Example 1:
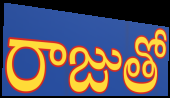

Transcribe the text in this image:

రాజుతో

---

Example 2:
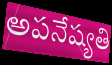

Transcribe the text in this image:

అపనేష్యతి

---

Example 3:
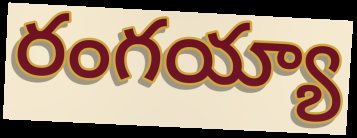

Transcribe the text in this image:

రంగయ్యా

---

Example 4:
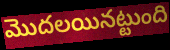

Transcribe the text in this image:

మొదలయినట్టుంది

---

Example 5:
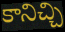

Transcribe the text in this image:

కానిచ్చి